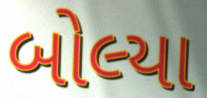
બોલ્યા